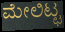
ಮೇಲಿಟ್ಟ